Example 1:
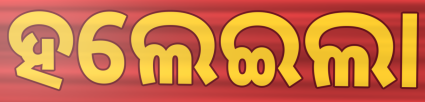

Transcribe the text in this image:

ହଲେଇଲା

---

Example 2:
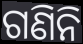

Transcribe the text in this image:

ଗଣିନି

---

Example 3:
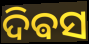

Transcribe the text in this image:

ଦିଵସ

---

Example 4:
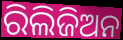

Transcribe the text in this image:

ରିଲିଜିଅନ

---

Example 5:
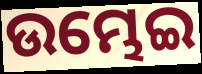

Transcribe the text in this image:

ଉମ୍ଭେଇ